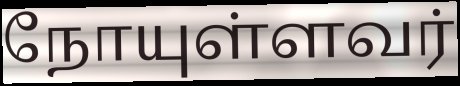
நோயுள்ளவர்